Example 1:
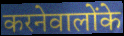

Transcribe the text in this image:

करनेवालोंके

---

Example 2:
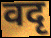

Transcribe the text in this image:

वदृ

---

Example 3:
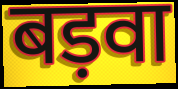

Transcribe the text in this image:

बड़वा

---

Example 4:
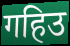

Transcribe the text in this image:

गहिउ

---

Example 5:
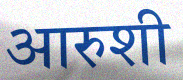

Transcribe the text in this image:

आरुशी